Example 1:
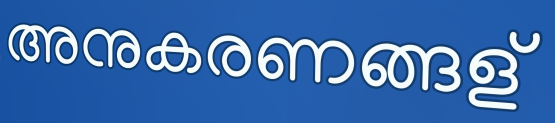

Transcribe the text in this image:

അനുകരണങ്ങള്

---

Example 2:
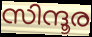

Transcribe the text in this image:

സിന്ദൂര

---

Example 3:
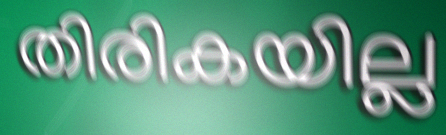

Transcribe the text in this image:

തിരികയില്ല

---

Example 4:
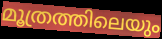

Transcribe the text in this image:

മൂത്രത്തിലെയും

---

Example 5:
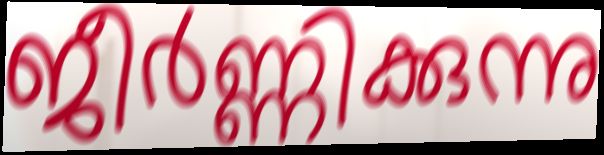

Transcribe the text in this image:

ജീർണ്ണിക്കുന്നു